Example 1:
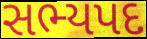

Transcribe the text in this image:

સભ્યપદ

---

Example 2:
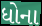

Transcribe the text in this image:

ધોના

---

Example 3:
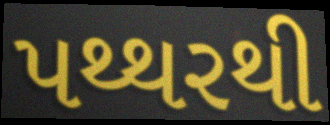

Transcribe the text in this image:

પથ્થરથી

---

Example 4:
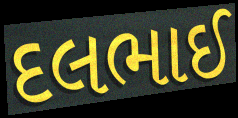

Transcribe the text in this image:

દલભાઈ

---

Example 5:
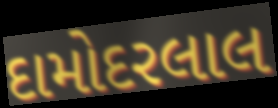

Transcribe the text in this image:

દામોદરલાલ